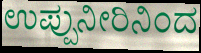
ಉಪ್ಪುನೀರಿನಿಂದ